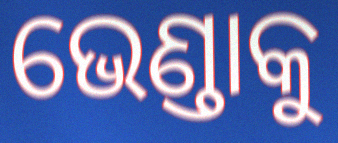
ଭେଣ୍ଡାକୁ